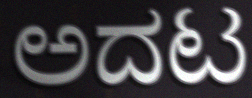
ಅದಟ